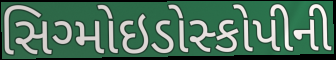
સિગ્મોઇડોસ્કોપીની